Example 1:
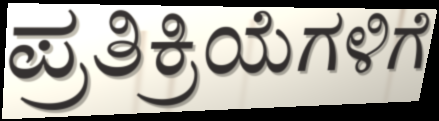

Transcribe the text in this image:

ಪ್ರತಿಕ್ರಿಯೆಗಳಿಗೆ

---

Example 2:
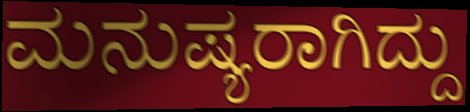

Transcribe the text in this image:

ಮನುಷ್ಯರಾಗಿದ್ದು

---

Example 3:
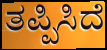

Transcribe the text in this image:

ತಪ್ಪಿಸಿದೆ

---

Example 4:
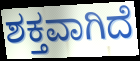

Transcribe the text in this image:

ಶಕ್ತವಾಗಿದೆ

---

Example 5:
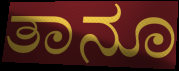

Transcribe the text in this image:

ತಾನೂ